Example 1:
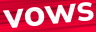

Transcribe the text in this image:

vows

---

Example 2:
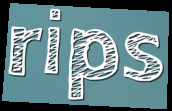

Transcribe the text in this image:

rips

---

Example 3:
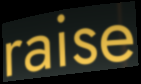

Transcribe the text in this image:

raise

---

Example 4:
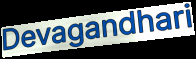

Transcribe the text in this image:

Devagandhari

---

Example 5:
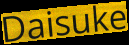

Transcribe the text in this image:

Daisuke